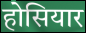
होसियार